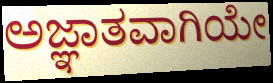
ಅಜ್ಞಾತವಾಗಿಯೇ